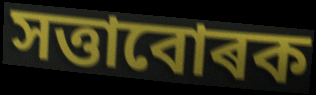
সত্তাবোৰক